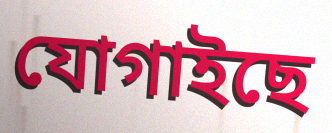
যোগাইছে